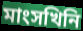
মাংসখিনি